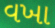
વખા